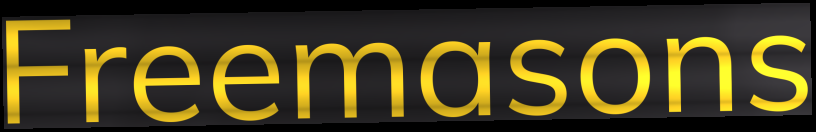
Freemasons